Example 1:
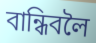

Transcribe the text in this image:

বান্ধিবলৈ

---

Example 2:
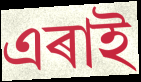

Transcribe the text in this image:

এৰাই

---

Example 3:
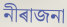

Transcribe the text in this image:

নীৰাজনা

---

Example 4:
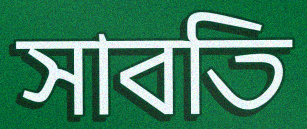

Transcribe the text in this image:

সাবতি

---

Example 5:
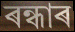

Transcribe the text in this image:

ৰন্ধাৰ